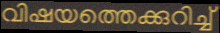
വിഷയത്തെക്കുറിച്ച്